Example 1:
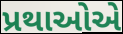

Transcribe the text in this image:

પ્રથાઓએ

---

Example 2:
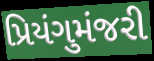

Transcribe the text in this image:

પ્રિયંગુમંજરી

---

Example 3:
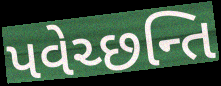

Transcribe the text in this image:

પવેચ્છન્તિ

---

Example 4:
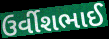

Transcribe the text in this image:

ઉર્વીશભાઈ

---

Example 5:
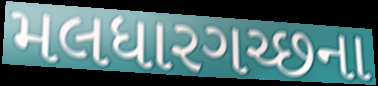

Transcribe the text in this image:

મલધારગચ્છના